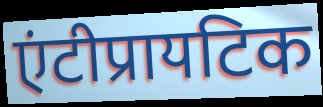
एंटीप्रायटिक